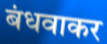
बंधवाकर